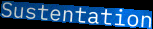
Sustentation